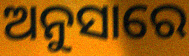
ଅନୁସାରେ